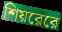
শিয়রেরে